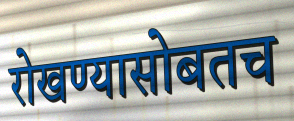
रोखण्यासोबतच